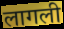
लागली